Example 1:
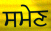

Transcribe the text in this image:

ਸਮੇਣ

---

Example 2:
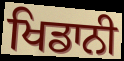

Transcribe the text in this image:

ਖਿਡਾਨੀ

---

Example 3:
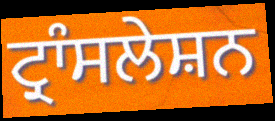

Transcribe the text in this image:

ਟ੍ਰਾੰਸਲੇਸ਼ਨ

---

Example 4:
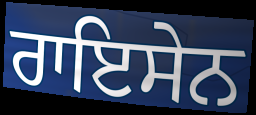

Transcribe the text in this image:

ਰਾਇਸੇਨ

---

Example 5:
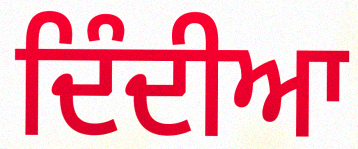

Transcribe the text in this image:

ਦਿੰਦੀਆ